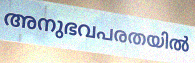
അനുഭവപരതയിൽ